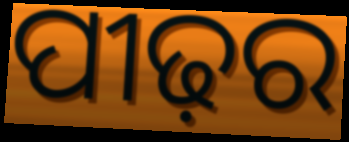
ପୀଢ଼ର